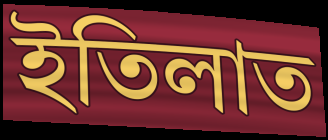
ইতিলাত